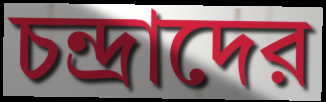
চন্দ্রাদের